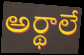
అర్థాలే